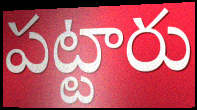
పట్టారు